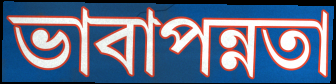
ভাবাপন্নতা